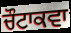
ਚੌਟਾਕਵਾ